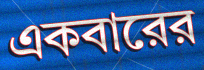
একবারের